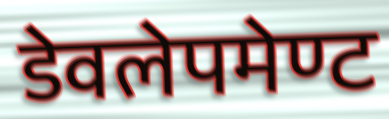
डेवलेपमेण्ट